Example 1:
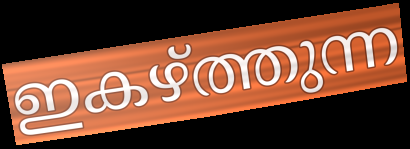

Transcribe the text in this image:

ഇകഴ്ത്തുന്ന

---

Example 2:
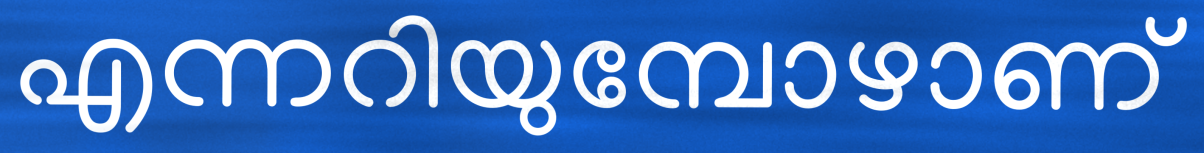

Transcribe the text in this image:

എന്നറിയുമ്പോഴാണ്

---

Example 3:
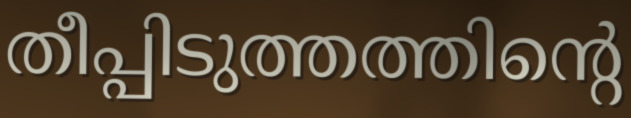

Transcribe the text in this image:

തീപ്പിടുത്തത്തിന്റെ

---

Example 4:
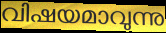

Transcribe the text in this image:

വിഷയമാവുന്നു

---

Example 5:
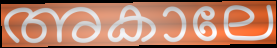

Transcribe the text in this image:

അകാലേ